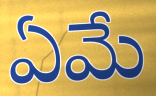
ఏమే